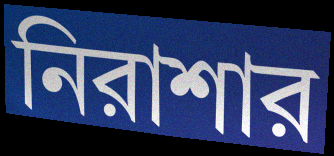
নিরাশার